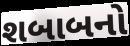
શબાબનો